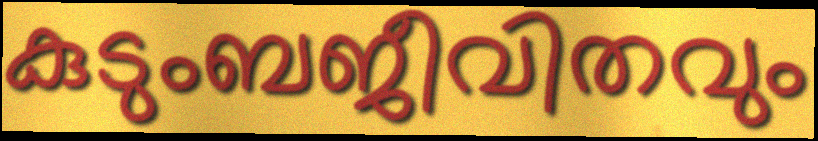
കുടുംബജീവിതവും